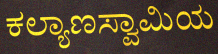
ಕಲ್ಯಾಣಸ್ವಾಮಿಯ